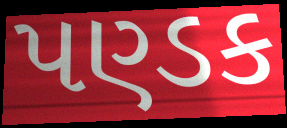
પણ્ડક